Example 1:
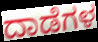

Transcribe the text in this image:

ದಾಡೆಗಳ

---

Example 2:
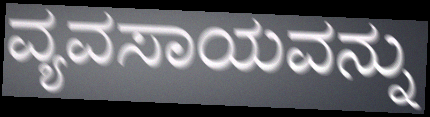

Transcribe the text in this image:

ವ್ಯವಸಾಯವನ್ನು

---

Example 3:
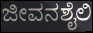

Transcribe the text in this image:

ಜೀವನಶೈಲಿ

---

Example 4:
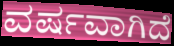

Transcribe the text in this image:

ವರ್ಷವಾಗಿದೆ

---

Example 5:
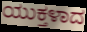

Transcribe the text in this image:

ಯುಕ್ತಳಾದ